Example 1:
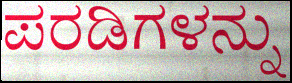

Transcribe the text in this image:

ಪರಡಿಗಳನ್ನು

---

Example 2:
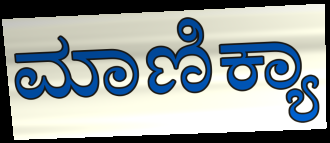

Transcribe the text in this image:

ಮಾಣಿಕ್ಯಾ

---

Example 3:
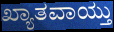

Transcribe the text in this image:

ಖ್ಯಾತವಾಯ್ತು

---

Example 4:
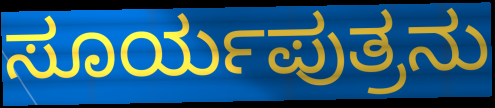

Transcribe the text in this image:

ಸೂರ್ಯಪುತ್ರನು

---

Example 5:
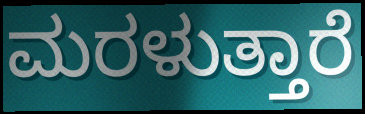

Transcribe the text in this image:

ಮರಳುತ್ತಾರೆ